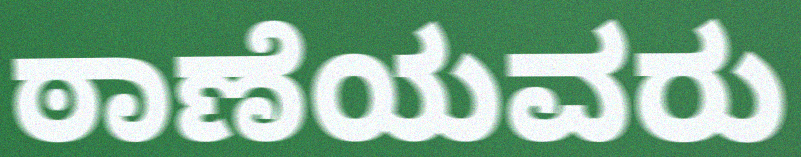
ಠಾಣೆಯವರು